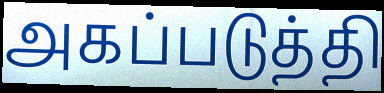
அகப்படுத்தி